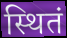
स्थितं